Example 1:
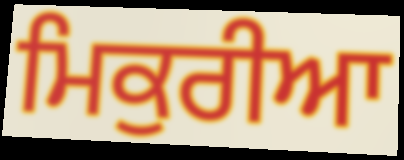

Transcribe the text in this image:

ਮਿਕੁਰੀਆ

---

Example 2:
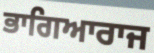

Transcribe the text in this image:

ਭਾਗਿਆਰਾਜ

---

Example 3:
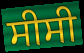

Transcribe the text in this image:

ਸੀਸੀ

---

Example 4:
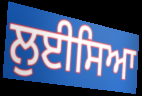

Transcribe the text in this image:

ਲੁਈਸਿਆ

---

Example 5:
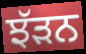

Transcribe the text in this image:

ਝੱੜਨ